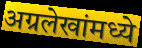
अग्रलेखांमध्ये